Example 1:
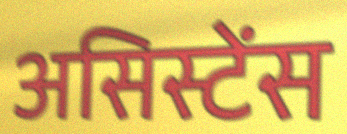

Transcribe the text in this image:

असिस्टेंस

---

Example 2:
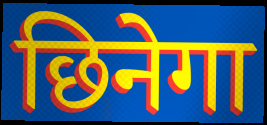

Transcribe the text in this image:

छिनेगा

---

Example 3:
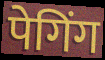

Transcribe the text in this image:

पेगिंग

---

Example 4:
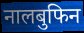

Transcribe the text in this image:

नालबुफिन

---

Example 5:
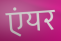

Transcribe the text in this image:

एंयर